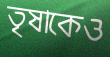
তৃষাকেও